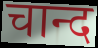
चान्द